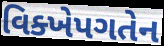
વિક્ખેપગતેન